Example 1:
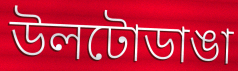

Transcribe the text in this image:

উলটোডাঙা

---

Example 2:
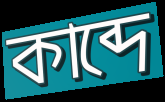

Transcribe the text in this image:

কাব্দে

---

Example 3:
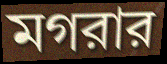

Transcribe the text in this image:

মগরার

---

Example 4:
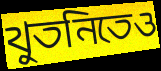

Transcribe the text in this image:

থুতনিতেও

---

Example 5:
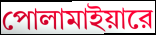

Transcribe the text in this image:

পোলামাইয়ারে